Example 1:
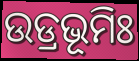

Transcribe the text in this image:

ଉଡ୍ରଭୂମିଃ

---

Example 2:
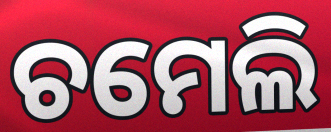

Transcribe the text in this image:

ଚମେଲି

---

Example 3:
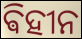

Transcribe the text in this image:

ଵିହୀନ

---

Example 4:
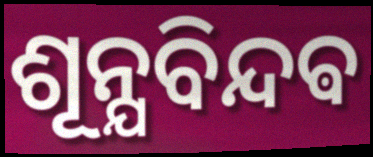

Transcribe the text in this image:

ଶୂନ୍ଯବିନ୍ଦଵ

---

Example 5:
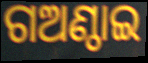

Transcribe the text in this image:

ଗଅଣ୍ଠାଇ